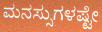
ಮನಸ್ಸುಗಳಷ್ಟೇ